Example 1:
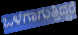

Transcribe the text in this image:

ಒಳಗಾಗುತ್ತಿದ್ದರೆ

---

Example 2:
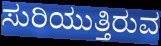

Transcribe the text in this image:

ಸುರಿಯುತ್ತಿರುವ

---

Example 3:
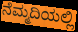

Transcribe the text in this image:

ನೆಮ್ಮದಿಯಲ್ಲಿ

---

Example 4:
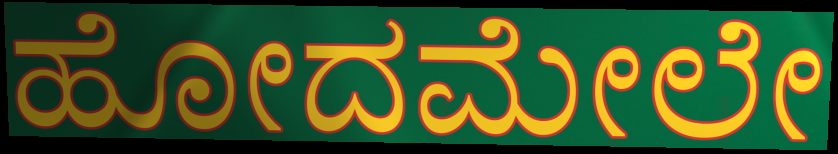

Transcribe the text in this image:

ಹೋದಮೇಲೇ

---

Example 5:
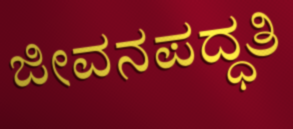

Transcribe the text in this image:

ಜೀವನಪದ್ಧತಿ